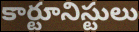
కార్టూనిస్టులు